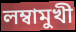
লম্বামুখী